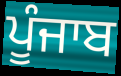
ਪੂੰਜਾਬ